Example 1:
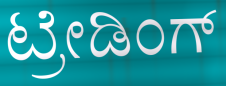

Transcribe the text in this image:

ಟ್ರೇಡಿಂಗ್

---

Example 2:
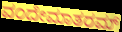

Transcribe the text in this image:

ವಂದೇಮಾತರಮ್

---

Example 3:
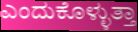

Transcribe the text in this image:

ಎಂದುಕೊಳ್ಳುತ್ತಾ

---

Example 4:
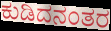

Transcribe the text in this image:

ಕುಡಿದನಂತರ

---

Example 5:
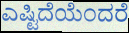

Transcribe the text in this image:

ಎಷ್ಟಿದೆಯೆಂದರೆ